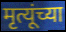
मृत्यूंच्या